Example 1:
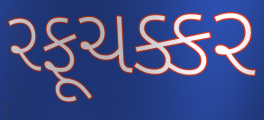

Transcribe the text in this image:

રફૂચક્કર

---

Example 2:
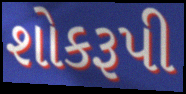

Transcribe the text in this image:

શોકરૂપી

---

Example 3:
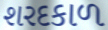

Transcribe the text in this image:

શરદકાળ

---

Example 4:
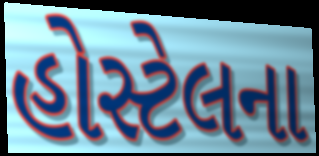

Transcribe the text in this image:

હોસ્ટેલના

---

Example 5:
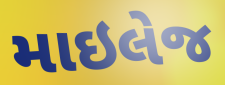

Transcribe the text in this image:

માઇલેજ